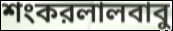
শংকরলালবাবু